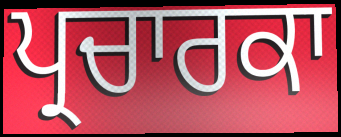
ਪ੍ਰਚਾਰਕਾ